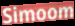
Simoom